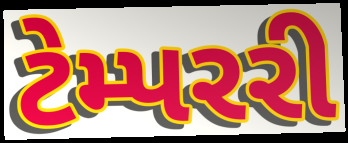
ટેમ્પરરી